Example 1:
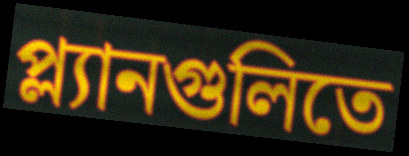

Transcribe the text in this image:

প্ল্যানগুলিতে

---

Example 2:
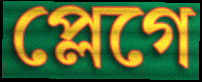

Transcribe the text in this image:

প্লেগে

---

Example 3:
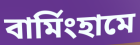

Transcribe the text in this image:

বার্মিংহামে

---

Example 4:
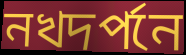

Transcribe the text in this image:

নখদর্পনে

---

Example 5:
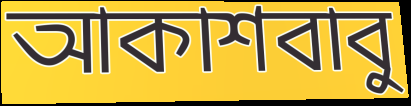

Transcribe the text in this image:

আকাশবাবু